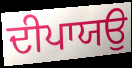
ਦੀਪਾਯਉ